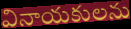
వినాయకులను